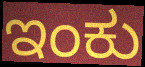
ಇಂಕು